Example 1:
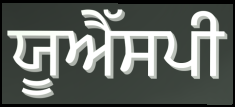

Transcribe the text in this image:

ਯੂਐੱਸਪੀ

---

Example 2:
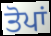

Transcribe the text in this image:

ਤੋਪਾਂ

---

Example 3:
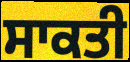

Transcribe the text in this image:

ਸਾਕਤੀ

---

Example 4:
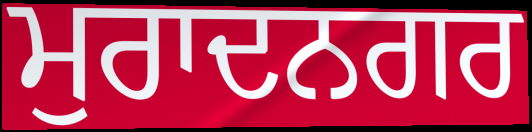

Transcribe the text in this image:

ਮੁਰਾਦਨਗਰ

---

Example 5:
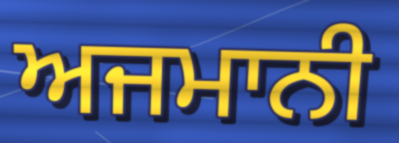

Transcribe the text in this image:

ਅਜਮਾਨੀ